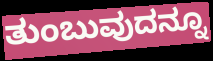
ತುಂಬುವುದನ್ನೂ